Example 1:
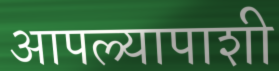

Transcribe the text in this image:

आपल्यापाशी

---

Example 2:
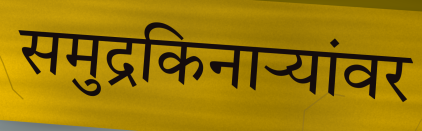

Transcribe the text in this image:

समुद्रकिनाऱ्यांवर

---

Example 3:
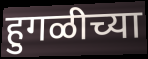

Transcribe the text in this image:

हुगळीच्या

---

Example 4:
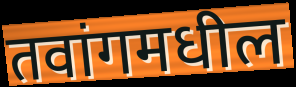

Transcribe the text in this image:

तवांगमधील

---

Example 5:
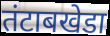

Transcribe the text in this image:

तंटाबखेडा